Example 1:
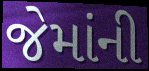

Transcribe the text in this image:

જેમાંની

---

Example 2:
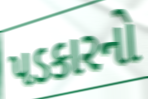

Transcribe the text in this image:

પડકારનો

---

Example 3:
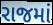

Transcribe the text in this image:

રાજમાં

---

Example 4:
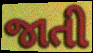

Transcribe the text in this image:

જાતી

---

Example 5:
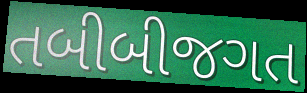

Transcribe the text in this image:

તબીબીજગત